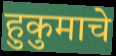
हुकुमाचे